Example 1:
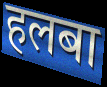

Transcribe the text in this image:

हलबा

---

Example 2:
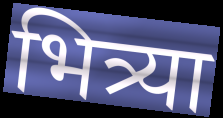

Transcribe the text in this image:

भित्र्या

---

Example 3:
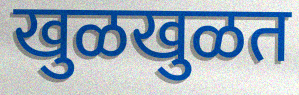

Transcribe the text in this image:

खुळखुळत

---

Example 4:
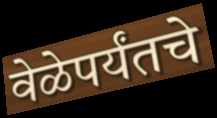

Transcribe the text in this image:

वेळेपर्यंतचे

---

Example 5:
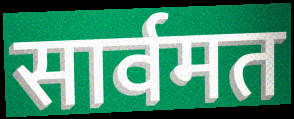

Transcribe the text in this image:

सार्वमत